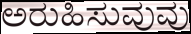
ಅರುಹಿಸುವುವು